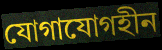
যোগাযোগহীন